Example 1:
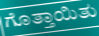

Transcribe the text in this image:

ಗೊತ್ತಾಯಿತು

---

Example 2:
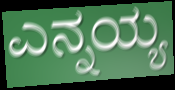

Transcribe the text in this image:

ಎನ್ನಯ್ಯ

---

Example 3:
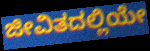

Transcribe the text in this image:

ಜೀವಿತದಲ್ಲಿಯೇ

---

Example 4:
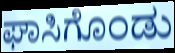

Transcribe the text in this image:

ಘಾಸಿಗೊಂಡು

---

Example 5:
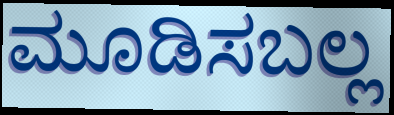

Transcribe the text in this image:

ಮೂಡಿಸಬಲ್ಲ